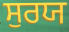
ਸੁਰਯ